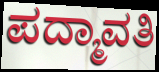
ಪದ್ಮಾವತಿ